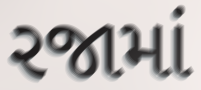
રજામાં